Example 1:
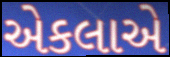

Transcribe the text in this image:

એકલાએ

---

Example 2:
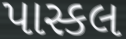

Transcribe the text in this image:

પાસ્કલ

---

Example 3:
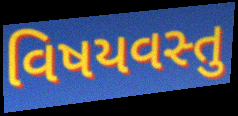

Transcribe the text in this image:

વિષયવસ્તુ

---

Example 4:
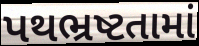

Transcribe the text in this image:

પથભ્રષ્ટતામાં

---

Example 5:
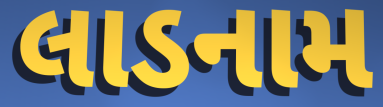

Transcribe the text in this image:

લાડનામ